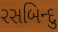
રસબિન્દુ